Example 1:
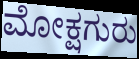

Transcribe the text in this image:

ಮೋಕ್ಷಗುರು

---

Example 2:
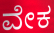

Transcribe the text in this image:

ವೇಕ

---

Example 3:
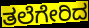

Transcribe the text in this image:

ತಲೆಗೇರಿದ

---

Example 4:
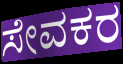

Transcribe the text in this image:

ಸೇವಕರ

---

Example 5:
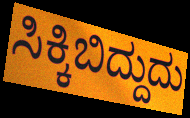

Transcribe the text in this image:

ಸಿಕ್ಕಿಬಿದ್ದುದು